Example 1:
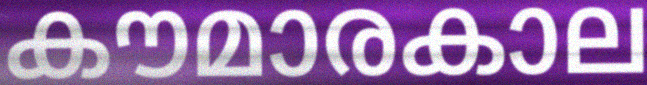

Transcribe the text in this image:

കൗമാരകാല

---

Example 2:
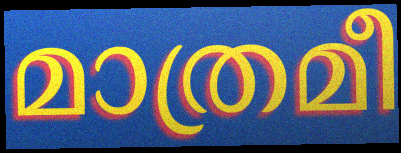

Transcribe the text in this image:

മാത്രമീ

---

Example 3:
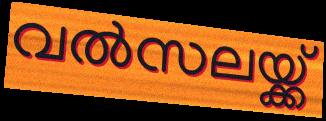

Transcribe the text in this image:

വൽസലയ്ക്ക്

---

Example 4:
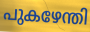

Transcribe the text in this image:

പുകഴേന്തി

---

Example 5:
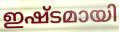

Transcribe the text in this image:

ഇഷ്ടമായി